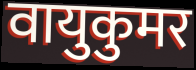
वायुकुमर